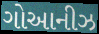
ગોઆનીઝ